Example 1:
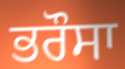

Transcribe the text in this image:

ਭਰੌਸਾ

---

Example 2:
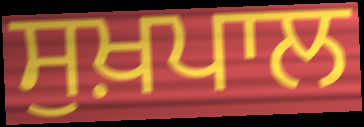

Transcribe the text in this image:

ਸੁਖ਼ਪਾਲ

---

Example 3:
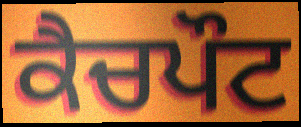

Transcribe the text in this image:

ਕੈਚਪੌਟ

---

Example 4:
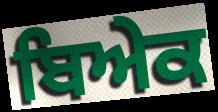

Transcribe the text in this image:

ਬਿਅੇਕ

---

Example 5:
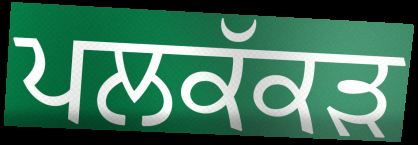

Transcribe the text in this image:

ਪਲਕੱਕੜ